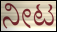
ನೀಟ